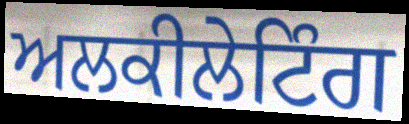
ਅਲਕੀਲੇਟਿੰਗ